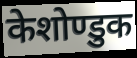
केशोण्डुक